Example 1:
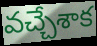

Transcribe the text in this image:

వచ్చేశాక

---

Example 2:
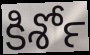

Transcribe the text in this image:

కిశోర్‍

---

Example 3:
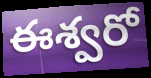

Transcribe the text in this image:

ఈశ్వరో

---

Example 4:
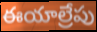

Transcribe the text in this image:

ఈయాల్రేపు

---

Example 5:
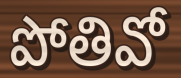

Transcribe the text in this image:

పోతివో